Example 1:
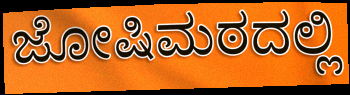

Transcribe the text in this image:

ಜೋಷಿಮಠದಲ್ಲಿ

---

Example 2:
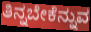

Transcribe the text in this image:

ತಿನ್ನಬೇಕೆನ್ನುವ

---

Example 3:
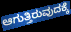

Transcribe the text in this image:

ಆಗುತ್ತಿರುವುದಕ್ಕೆ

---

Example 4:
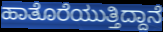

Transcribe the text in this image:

ಹಾತೊರೆಯುತ್ತಿದ್ದಾನೆ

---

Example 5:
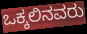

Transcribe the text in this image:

ಒಕ್ಕಲಿನವರು